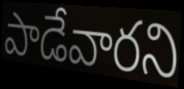
పాడేవారని